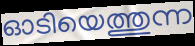
ഓടിയെത്തുന്ന